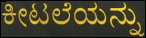
ಕೀಟಲೆಯನ್ನು